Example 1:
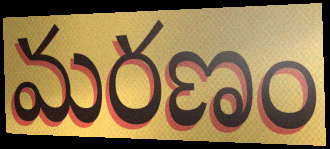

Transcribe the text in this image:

మరణం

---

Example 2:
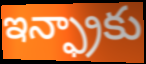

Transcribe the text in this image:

ఇన్ఫ్రాకు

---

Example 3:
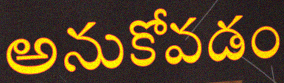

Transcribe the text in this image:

అనుకోవడం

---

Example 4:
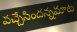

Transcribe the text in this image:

వచ్చేసిందన్నమాట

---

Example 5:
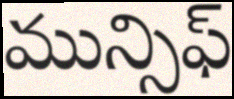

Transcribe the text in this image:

మున్సిఫ్